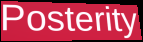
Posterity